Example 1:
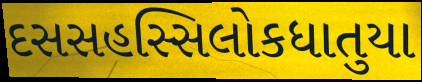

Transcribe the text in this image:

દસસહસ્સિલોકધાતુયા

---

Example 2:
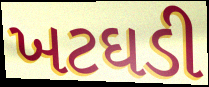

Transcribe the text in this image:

ખટઘડી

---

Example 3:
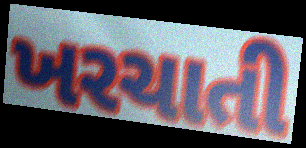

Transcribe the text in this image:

ખરચાતી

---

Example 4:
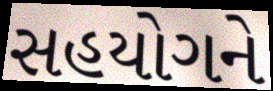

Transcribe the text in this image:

સહયોગને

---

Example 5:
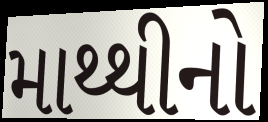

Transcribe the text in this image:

માથ્થીનો